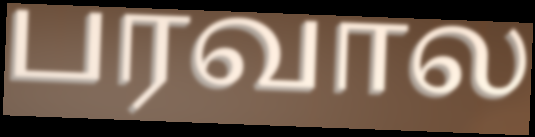
பரவால